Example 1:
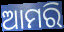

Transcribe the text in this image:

ଆମରି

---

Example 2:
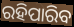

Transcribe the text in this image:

ରହିପାରିବ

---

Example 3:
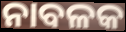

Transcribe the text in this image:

ନାବଳକ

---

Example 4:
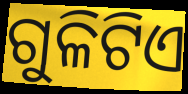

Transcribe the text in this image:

ଗୁଳିଟିଏ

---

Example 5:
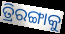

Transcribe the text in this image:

ତ୍ରିରଙ୍ଗାକୁ